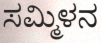
ಸಮ್ಮಿಳನ